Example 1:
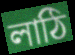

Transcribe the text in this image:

লাঠি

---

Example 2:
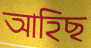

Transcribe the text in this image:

আহিছ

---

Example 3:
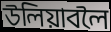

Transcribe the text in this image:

উলিয়াবলৈ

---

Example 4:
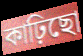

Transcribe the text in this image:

কাঢ়িছো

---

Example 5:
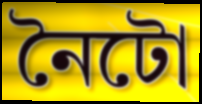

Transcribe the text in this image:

নৈটো